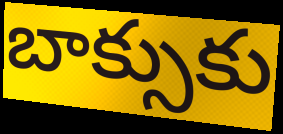
బాక్సుకు